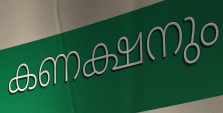
കണക്ഷനും